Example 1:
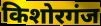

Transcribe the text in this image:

किशोरगंज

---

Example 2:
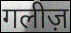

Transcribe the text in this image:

गलीज़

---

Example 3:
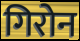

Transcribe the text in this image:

गिरोन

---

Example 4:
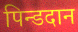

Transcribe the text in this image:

पिन्डदान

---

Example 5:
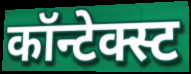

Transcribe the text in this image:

कॉन्टेक्स्ट